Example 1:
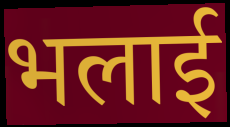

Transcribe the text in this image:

भलाई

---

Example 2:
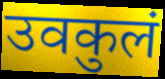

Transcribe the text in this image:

उवकुलं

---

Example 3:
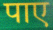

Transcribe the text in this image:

पाए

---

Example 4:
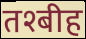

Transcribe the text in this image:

तश्बीह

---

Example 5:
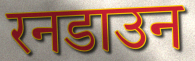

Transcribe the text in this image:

रनडाउन